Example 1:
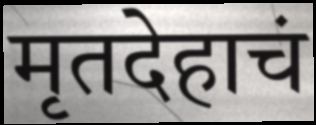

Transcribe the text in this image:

मृतदेहाचं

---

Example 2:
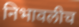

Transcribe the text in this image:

निभावलीच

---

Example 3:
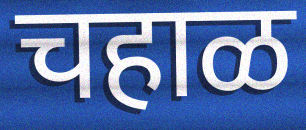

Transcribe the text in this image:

चहाळ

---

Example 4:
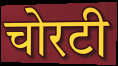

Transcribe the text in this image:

चोरटी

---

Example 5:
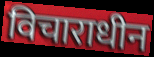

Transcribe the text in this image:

विचाराधीन